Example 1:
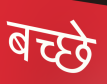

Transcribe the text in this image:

बच्छे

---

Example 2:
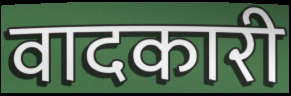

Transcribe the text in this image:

वादकारी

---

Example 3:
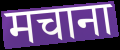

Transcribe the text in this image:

मचाना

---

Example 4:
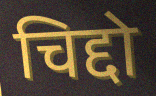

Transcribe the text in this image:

चिद्दो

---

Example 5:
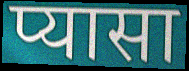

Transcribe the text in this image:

प्यासा